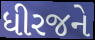
ધીરજને